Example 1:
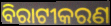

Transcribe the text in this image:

ବିରାଟୀକରଣ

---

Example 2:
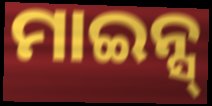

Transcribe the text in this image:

ମାଇନ୍ସ୍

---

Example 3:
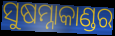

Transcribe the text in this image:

ସୁଷମ୍ନାକାଣ୍ଡର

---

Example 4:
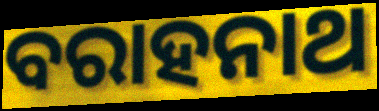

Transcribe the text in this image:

ବରାହନାଥ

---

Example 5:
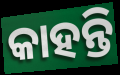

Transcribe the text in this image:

କାହନ୍ତି